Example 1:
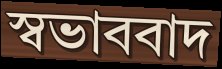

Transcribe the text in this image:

স্বভাববাদ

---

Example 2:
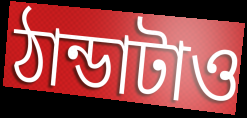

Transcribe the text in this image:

ঠান্ডাটাও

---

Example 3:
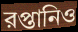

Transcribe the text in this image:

রপ্তানিও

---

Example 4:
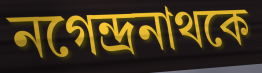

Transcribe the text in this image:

নগেন্দ্রনাথকে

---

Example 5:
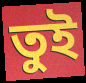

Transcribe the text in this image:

তুই